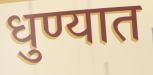
धुण्यात